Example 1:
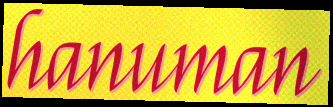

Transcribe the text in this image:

hanuman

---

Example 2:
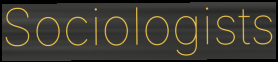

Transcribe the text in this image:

Sociologists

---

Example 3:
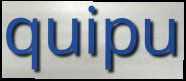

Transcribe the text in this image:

quipu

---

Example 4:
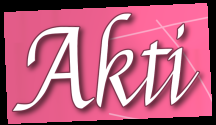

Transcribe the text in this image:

Akti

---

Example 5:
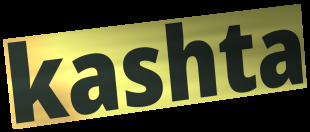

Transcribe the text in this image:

kashta